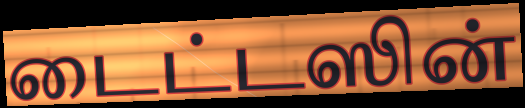
டைட்டஸின்